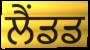
ਲੈਂਡਡ